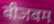
बीजबम